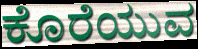
ಕೊರೆಯುವ